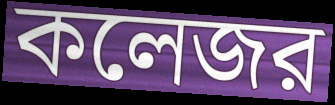
কলেজর